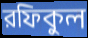
রফিকুল